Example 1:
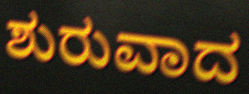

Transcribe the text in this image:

ಶುರುವಾದ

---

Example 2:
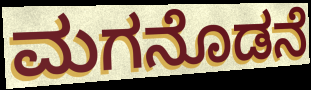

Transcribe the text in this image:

ಮಗನೊಡನೆ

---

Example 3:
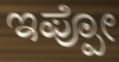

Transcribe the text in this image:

ಇಪ್ಪೋ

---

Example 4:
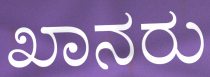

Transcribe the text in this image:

ಖಾನರು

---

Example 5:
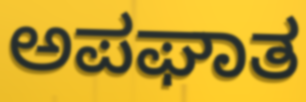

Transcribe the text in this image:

ಅಪಘಾತ